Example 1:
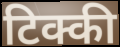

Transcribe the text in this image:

टिक्की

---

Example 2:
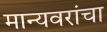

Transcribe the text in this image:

मान्यवरांचा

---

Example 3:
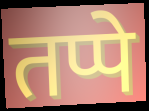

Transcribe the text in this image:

तप्पे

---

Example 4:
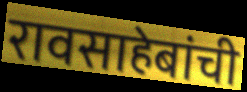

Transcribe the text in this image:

रावसाहेबांची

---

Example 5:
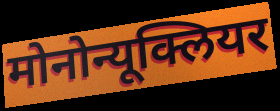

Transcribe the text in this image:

मोनोन्यूक्लियर